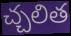
చ్చలిత